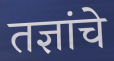
तज्ञांचे